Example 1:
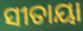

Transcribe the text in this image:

ସୀତାୟା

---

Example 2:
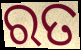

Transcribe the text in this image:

ରତ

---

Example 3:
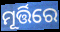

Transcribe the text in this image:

ମୂର୍ତ୍ତିରେ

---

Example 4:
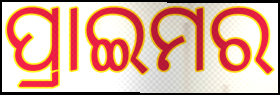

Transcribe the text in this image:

ପ୍ରାଇମର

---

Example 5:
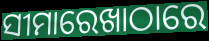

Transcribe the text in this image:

ସୀମାରେଖାଠାରେ